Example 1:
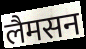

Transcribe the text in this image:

लैमसन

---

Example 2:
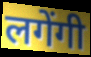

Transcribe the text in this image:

लगेंगी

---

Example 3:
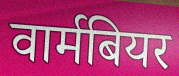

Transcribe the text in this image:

वार्मबियर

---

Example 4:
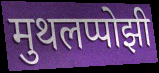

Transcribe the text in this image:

मुथलप्पोझी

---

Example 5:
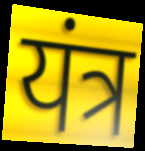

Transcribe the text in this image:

यंत्र